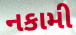
નકામી